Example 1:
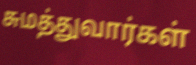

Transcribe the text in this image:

சுமத்துவார்கள்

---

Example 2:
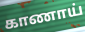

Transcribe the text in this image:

காணாய்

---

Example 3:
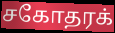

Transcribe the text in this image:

சகோதரக்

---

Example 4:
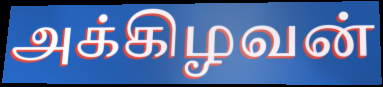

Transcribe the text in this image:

அக்கிழவன்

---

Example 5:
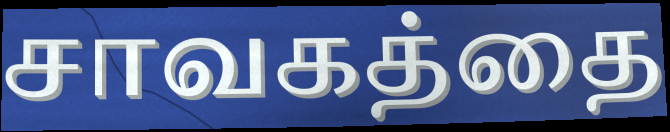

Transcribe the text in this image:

சாவகத்தை